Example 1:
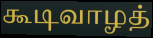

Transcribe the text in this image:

கூடிவாழத்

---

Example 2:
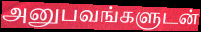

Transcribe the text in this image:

அனுபவங்களுடன்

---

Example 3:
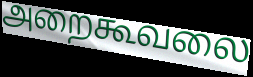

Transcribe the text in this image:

அறைகூவலை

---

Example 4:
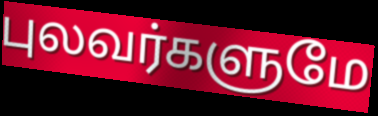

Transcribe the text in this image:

புலவர்களுமே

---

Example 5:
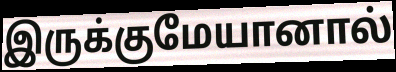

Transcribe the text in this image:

இருக்குமேயானால்